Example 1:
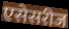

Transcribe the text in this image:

एसेसरीज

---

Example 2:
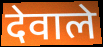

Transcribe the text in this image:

देवाले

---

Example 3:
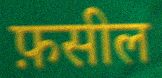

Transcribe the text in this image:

फ़सील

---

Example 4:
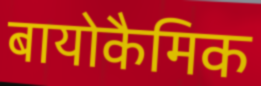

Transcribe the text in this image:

बायोकैमिक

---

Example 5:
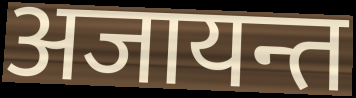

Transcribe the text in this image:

अजायन्त